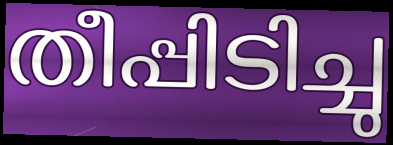
തീപ്പിടിച്ചു